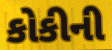
કોકીની